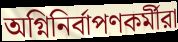
অগ্নিনির্বাপণকর্মীরা